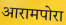
आरामपोरा